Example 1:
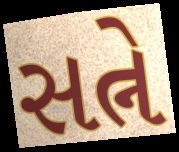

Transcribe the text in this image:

સત્ને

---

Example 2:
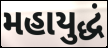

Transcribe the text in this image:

મહાયુદ્ધં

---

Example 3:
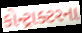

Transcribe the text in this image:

કોન્ટ્રાક્ટરના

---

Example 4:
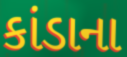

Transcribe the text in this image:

કાંડાના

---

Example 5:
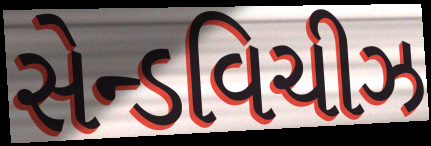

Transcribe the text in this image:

સેન્ડવિચીઝ